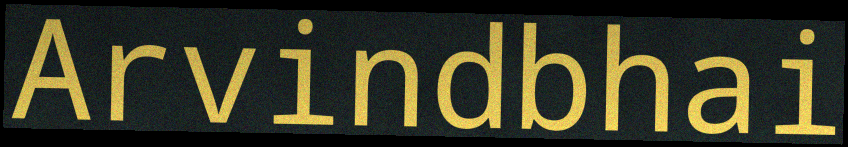
Arvindbhai